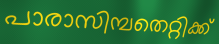
പാരാസിമ്പതെറ്റിക്ക്